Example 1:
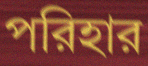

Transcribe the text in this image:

পরিহার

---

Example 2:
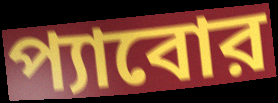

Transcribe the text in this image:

প্যাবোর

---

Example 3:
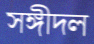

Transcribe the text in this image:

সঙ্গীদল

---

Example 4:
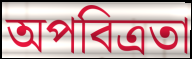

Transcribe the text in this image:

অপবিত্রতা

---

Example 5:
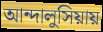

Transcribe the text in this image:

আন্দালুসিয়ায়